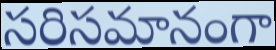
సరిసమానంగా